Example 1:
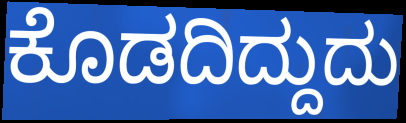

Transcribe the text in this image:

ಕೊಡದಿದ್ದುದು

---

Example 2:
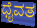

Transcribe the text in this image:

ಧೈವತ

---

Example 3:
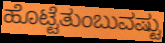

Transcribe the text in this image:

ಹೊಟ್ಟೆತುಂಬುವಷ್ಟು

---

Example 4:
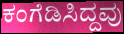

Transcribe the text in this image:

ಕಂಗೆಡಿಸಿದ್ದವು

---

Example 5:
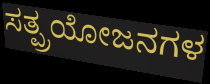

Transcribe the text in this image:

ಸತ್ಪ್ರಯೋಜನಗಳ